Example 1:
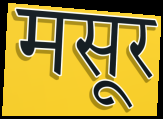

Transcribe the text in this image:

मसूर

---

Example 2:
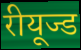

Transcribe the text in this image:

रीयूज्ड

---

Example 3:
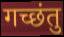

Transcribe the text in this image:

गच्छंतु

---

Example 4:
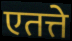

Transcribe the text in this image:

एतत्ते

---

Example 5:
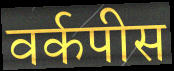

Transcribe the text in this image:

वर्कपीस